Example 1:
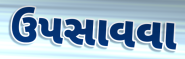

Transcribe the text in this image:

ઉપસાવવા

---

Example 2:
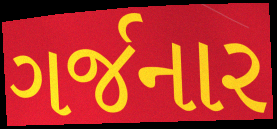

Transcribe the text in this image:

ગર્જનાર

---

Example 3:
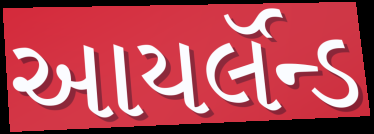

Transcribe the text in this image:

આયર્લૅન્ડ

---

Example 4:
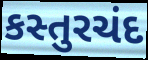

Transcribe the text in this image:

કસ્તુરચંદ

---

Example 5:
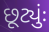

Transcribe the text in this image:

છૂટ્યુંઃ